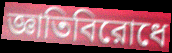
জ্ঞাতিবিরোধে